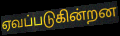
ஏவப்படுகின்றன